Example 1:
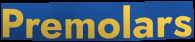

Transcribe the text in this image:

Premolars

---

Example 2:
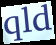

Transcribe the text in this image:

qld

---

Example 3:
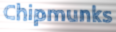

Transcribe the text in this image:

Chipmunks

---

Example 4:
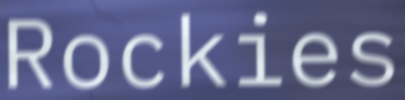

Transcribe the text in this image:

Rockies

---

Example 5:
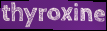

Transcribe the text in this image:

thyroxine